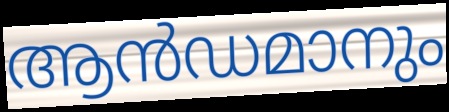
ആൻഡമാനും